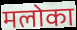
मलोका